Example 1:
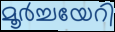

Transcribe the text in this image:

മൂർച്ചയേറി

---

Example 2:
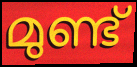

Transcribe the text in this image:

മുണ്ട്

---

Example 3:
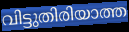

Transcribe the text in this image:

വിട്ടുതിരിയാത്ത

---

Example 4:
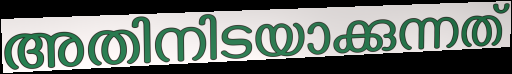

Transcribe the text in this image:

അതിനിടയാക്കുന്നത്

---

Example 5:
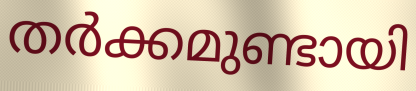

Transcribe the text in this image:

തർക്കമുണ്ടായി